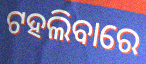
ଟହଲିବାରେ